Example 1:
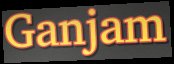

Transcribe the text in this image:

Ganjam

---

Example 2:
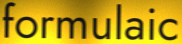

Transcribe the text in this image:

formulaic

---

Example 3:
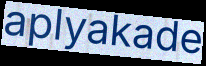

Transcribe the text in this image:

aplyakade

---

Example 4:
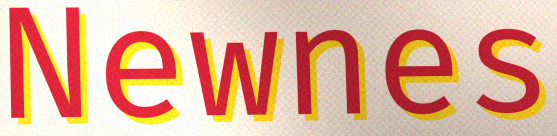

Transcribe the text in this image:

Newnes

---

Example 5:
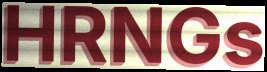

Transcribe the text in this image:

HRNGs